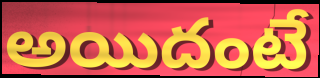
అయిదంటే